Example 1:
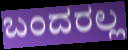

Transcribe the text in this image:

ಬಂದರಲ್ಲ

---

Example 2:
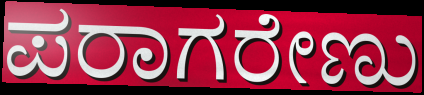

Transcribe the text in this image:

ಪರಾಗರೇಣು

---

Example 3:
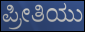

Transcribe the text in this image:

ಪ್ರೀತಿಯು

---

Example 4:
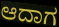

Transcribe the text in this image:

ಆದಾಗ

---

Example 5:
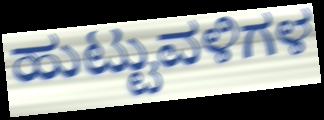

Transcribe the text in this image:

ಹುಟ್ಟುವಳಿಗಳ